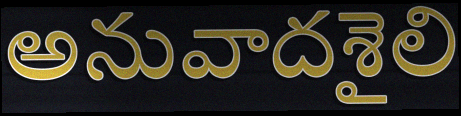
అనువాదశైలి